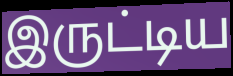
இருட்டிய